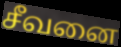
சீவனை